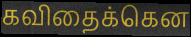
கவிதைக்கென